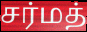
சர்மத்